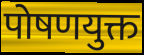
पोषणयुक्त